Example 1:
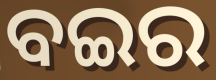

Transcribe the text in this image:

ବଇର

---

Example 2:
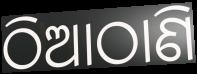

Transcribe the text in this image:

ଠିଆଠାଣି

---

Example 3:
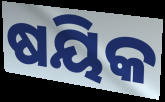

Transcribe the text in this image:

ଷୟିକ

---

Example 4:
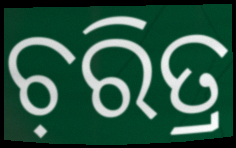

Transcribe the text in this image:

ଚ଼ରିତ୍ର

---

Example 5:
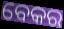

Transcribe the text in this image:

ବେକର